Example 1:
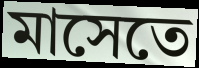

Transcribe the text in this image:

মাসেতে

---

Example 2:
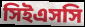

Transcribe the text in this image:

সিইএসসি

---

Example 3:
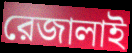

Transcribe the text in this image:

রেজালাই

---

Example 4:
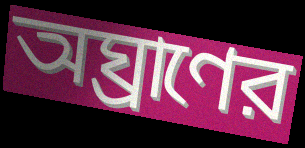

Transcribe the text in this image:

অঘ্রাণের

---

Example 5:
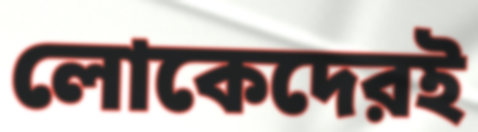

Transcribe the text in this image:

লোকেদেরই